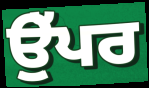
ਉੁੱਪਰ